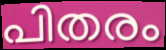
പിതരം